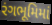
રંગભૂમિમાં